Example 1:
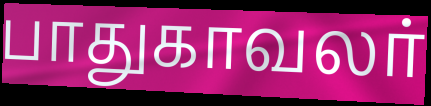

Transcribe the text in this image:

பாதுகாவலர்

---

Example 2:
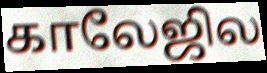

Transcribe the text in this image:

காலேஜில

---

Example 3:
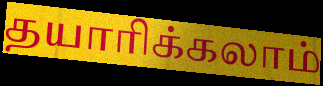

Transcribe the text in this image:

தயாரிக்கலாம்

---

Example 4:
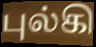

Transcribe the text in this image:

புல்கி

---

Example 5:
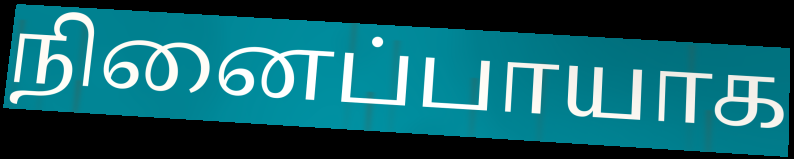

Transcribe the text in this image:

நினைப்பாயாக